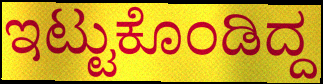
ಇಟ್ಟುಕೊಂಡಿದ್ದ